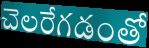
చెలరేగడంతో